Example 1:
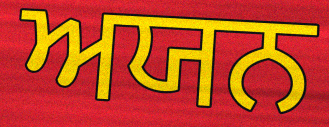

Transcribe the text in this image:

ਅਯਨ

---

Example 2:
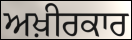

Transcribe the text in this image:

ਅਖ਼ੀਰਕਾਰ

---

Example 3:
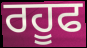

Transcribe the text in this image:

ਰਹੂਫ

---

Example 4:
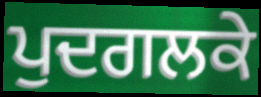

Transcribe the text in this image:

ਪੁਦਗਲਕੇ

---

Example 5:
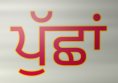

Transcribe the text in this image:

ਪੁੱਛਾਂ